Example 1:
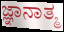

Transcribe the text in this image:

ಜ್ಞಾನಾತ್ಮ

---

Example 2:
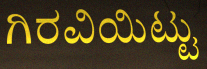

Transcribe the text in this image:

ಗಿರವಿಯಿಟ್ಟು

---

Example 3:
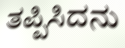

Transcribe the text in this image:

ತಪ್ಪಿಸಿದನು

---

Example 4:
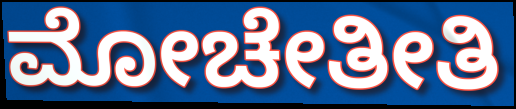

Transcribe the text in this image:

ಮೋಚೇತೀತಿ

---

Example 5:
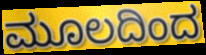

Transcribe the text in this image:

ಮೂಲದಿಂದ